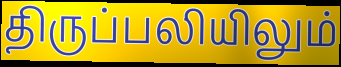
திருப்பலியிலும்